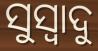
ସୁସ୍ଵାଦୁ